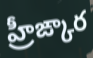
హ్రీఙ్కార